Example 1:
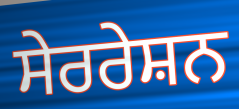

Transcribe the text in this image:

ਸੇਰਰੇਸ਼ਨ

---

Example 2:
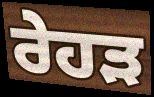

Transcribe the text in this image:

ਰੇਹੜ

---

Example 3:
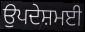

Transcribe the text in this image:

ਉਪਦੇਸ਼ਮਈ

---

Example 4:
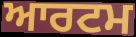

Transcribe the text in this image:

ਆਰਟਮ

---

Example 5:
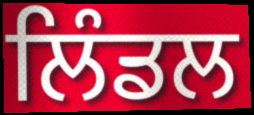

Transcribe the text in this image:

ਲਿੰਡਲ